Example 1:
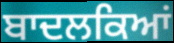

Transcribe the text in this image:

ਬਾਦਲਕਿਆਂ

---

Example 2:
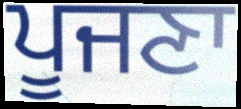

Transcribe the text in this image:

ਪੂਜਣਾ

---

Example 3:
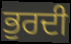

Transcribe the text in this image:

ਭੁਰਦੀ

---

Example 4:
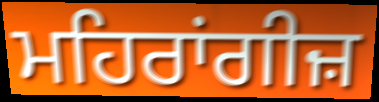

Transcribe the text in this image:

ਮਹਿਰਾਂਗੀਜ਼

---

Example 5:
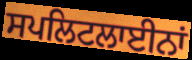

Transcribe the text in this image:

ਸਪਲਿਟਲਾਈਨਾਂ